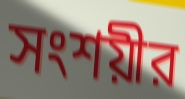
সংশয়ীর